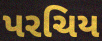
પરચિય